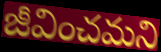
జీవించమని